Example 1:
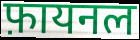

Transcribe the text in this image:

फ़ायनल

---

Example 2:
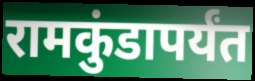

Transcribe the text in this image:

रामकुंडापर्यंत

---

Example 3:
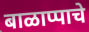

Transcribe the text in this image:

बाळाप्पाचे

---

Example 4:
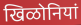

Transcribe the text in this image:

खिळोनियां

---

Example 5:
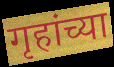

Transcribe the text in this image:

गृहांच्या